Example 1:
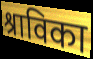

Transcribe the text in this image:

श्राविका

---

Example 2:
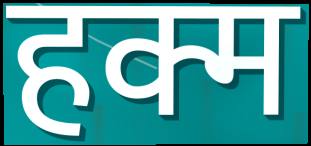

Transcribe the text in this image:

हक्म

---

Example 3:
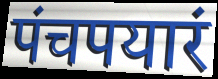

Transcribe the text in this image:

पंचपयारं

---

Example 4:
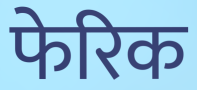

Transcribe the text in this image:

फेरिक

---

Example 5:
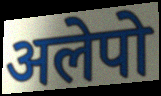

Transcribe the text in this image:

अलेपो